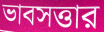
ভাবসত্তার